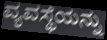
ವ್ಯವಸ್ಥೆಯನ್ನು